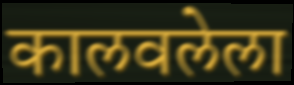
कालवलेला